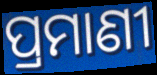
ପ୍ରମାଣୀ